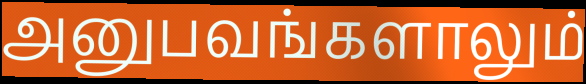
அனுபவங்களாலும்